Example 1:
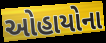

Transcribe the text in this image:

ઓહાયોના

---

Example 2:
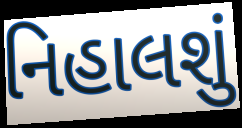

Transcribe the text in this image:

નિહાલશું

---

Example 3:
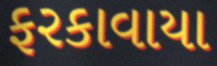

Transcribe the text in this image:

ફરકાવાયા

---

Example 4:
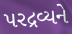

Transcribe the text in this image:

પરદ્રવ્યને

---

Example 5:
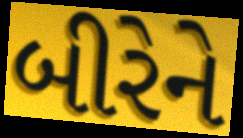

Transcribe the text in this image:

બીરેને